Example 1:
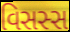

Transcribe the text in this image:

વિસસ્સ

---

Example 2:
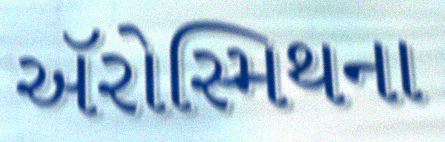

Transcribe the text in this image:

ઍરોસ્મિથના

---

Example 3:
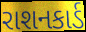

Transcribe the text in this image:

રાશનકાર્ડ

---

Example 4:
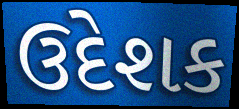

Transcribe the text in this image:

ઉદેશક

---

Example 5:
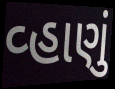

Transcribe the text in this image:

વ્હાણું